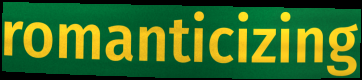
romanticizing